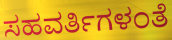
ಸಹವರ್ತಿಗಳಂತೆ